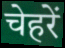
चेहरें